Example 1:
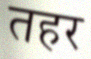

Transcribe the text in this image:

तहर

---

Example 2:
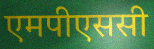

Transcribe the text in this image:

एमपीएससी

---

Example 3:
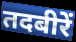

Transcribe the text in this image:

तदबीरें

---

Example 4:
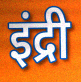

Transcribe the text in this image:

इंद्री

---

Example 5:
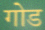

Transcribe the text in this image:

गोड